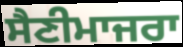
ਸੈਣੀਮਾਜਰਾ